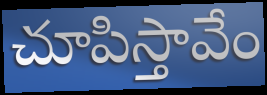
చూపిస్తావేం